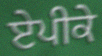
ਏਪੀਕੇ